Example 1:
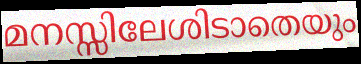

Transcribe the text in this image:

മനസ്സിലേശിടാതെയും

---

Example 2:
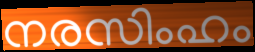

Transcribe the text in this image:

നരസിംഹം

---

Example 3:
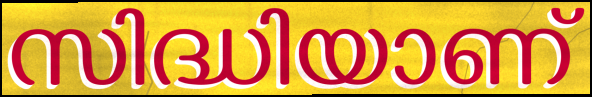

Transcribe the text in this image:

സിദ്ധിയാണ്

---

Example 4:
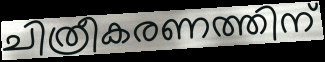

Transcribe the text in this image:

ചിത്രീകരണത്തിന്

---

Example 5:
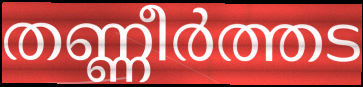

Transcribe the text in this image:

തണ്ണീർത്തട